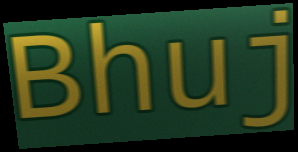
Bhuj